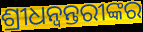
ଶ୍ରୀଧନ୍ୱନ୍ତରୀଙ୍କର